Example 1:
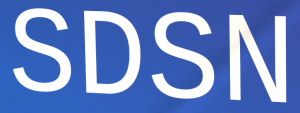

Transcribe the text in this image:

SDSN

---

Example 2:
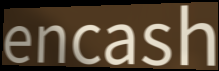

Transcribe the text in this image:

encash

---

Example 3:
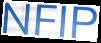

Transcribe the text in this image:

NFIP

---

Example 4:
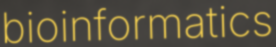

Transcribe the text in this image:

bioinformatics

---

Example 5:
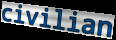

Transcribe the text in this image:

civilian